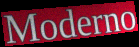
Moderno